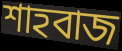
শাহবাজ